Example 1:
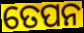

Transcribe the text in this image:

ତେପନ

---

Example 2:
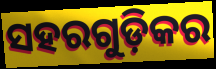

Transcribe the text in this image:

ସହରଗୁଡ଼ିକର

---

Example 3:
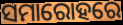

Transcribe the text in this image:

ସମାରୋହରେ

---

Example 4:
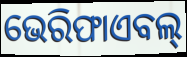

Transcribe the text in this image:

ଭେରିଫାଏବଲ୍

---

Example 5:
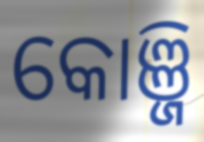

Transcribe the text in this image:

କୋଞ୍ଜି